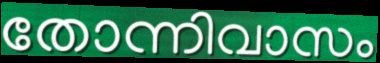
തോന്നിവാസം